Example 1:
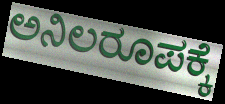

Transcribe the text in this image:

ಅನಿಲರೂಪಕ್ಕೆ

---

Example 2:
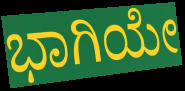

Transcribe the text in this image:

ಭಾಗಿಯೇ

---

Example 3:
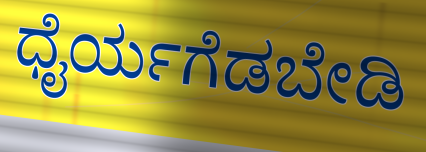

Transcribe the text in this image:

ಧೈರ್ಯಗೆಡಬೇಡಿ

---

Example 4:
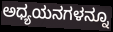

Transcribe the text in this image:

ಅಧ್ಯಯನಗಳನ್ನೂ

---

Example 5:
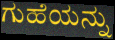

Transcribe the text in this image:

ಗುಹೆಯನ್ನು